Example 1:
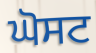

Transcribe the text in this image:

ਘੋਸਟ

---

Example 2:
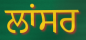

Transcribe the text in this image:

ਲਾਂਸਰ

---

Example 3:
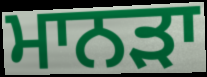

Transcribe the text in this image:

ਮਾਨੜਾ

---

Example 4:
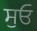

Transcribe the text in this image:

ਸੁਓ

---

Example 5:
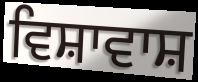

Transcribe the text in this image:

ਵਿਸ਼ਾਵਾਸ਼